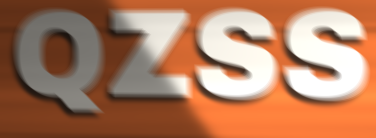
QZSS